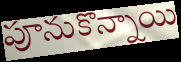
పూనుకొన్నాయి